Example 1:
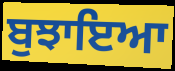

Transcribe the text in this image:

ਬੁਝਾਇਆ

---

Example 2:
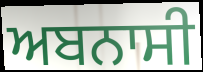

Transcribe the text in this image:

ਅਬਨਾਸੀ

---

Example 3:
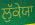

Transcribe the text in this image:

ਲੁੱਕੇਯਾ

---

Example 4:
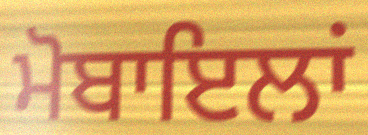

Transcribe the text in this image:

ਮੋਬਾਇਲਾਂ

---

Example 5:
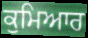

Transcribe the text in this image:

ਕੁਮਿਆਰ